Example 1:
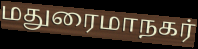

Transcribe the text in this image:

மதுரைமாநகர்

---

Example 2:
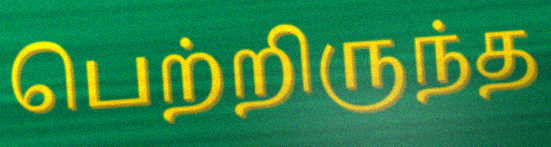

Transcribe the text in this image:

பெற்றிருந்த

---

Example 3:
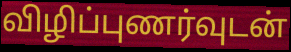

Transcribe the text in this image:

விழிப்புணர்வுடன்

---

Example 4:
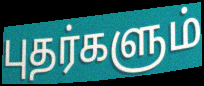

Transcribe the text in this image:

புதர்களும்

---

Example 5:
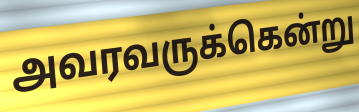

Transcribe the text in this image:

அவரவருக்கென்று